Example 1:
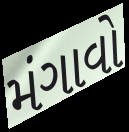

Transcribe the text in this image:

મંગાવો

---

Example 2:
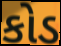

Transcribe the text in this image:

કોડ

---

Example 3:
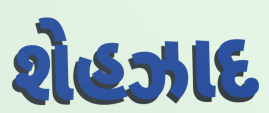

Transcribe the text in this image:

શેહઝાદ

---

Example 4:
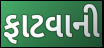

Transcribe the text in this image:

ફાટવાની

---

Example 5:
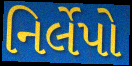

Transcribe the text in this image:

નિર્લેપો